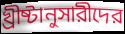
খ্রীষ্টানুসারীদের